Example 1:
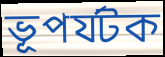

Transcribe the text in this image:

ভূপর্যটক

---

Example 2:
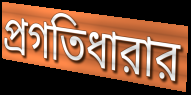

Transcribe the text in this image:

প্রগতিধারার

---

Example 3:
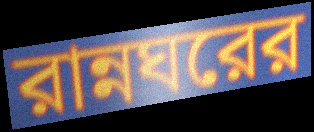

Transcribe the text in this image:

রান্নঘরের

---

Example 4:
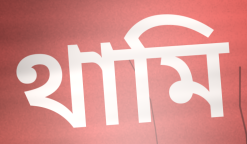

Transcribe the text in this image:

থামি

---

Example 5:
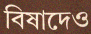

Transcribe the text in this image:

বিষাদেও